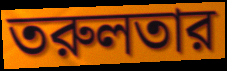
তরুলতার